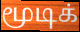
மூடிக்